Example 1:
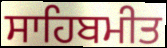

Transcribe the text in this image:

ਸਾਹਿਬਮੀਤ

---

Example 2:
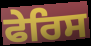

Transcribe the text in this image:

ਫੇਰਿਸ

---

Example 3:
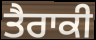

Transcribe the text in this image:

ਤੈਰਾਕੀ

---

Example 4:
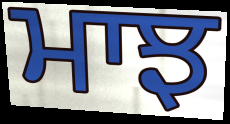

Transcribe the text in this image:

ਮਾਝ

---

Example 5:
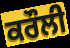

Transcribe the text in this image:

ਕਰੌਲੀ